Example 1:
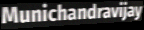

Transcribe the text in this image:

Munichandravijay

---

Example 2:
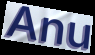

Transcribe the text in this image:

Anu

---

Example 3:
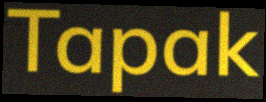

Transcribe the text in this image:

Tapak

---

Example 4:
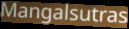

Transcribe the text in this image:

Mangalsutras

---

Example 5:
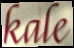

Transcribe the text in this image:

kale